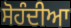
ਸੋਹੰਦੀਆ